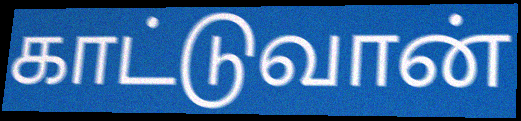
காட்டுவான்